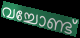
വച്ചോണ്ട്